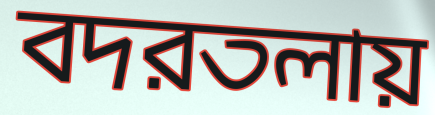
বদরতলায়